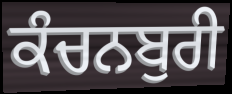
ਕੰਚਨਬੁਰੀ